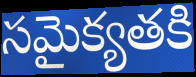
సమైక్యతకి